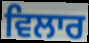
ਵਿਲਾਰ